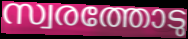
സ്വരത്തോടു